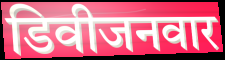
डिवीजनवार